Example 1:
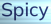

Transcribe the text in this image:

Spicy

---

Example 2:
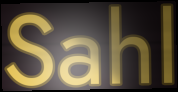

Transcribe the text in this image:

Sahl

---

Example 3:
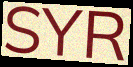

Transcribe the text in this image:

SYR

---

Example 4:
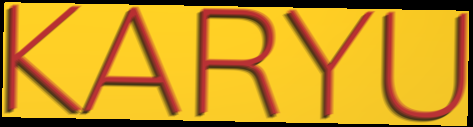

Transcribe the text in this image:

KARYU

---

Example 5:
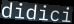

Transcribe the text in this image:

didici